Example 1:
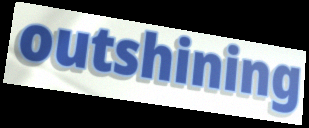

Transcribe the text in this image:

outshining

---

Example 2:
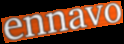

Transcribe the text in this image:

ennavo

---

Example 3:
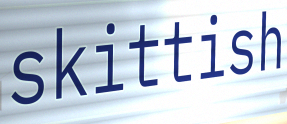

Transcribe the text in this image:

skittish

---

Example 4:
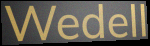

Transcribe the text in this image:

Wedell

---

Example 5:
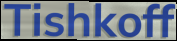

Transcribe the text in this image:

Tishkoff